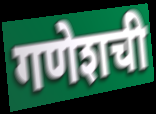
गणेशची